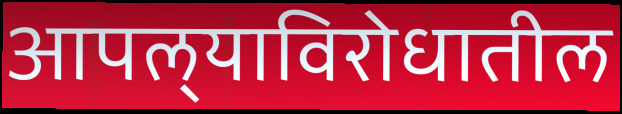
आपल्याविरोधातील